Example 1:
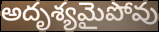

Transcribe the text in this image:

అదృశ్యమైపోవు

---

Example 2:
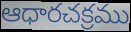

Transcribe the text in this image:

ఆధారచక్రము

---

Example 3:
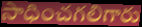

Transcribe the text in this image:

సాధించగలిగారు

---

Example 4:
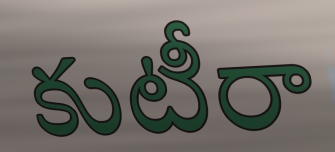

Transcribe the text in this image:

కుటీరా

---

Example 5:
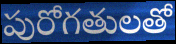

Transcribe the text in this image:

పురోగతులతో